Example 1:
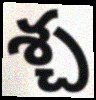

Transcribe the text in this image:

శ్చ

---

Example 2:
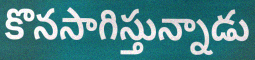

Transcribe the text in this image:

కొనసాగిస్తున్నాడు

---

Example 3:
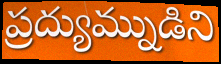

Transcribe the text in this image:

ప్రద్యుమ్నుడిని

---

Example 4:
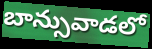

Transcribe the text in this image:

బాన్సువాడలో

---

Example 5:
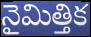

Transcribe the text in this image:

నైమిత్తిక